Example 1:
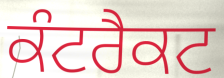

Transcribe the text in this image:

ਕੰਟਰੈਕਟ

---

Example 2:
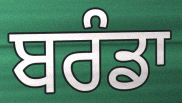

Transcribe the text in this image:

ਬਰੰਡਾ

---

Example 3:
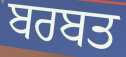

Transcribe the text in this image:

ਬਰਬਤ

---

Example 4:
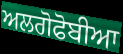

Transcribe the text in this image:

ਅਲਗੋਫੋਬੀਆ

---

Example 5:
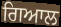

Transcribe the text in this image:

ਗਿਆਲ